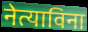
नेत्याविना